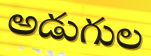
అడుగుల